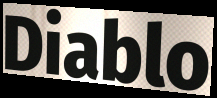
Diablo